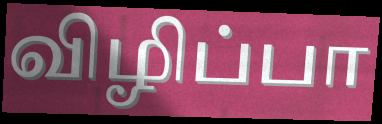
விழிப்பா